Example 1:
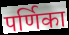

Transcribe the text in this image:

पर्णिका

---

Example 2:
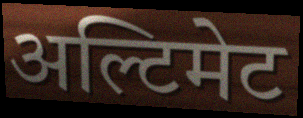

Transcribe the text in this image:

अल्टिमेट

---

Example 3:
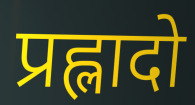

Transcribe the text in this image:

प्रह्लादो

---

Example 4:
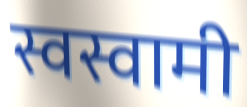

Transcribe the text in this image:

स्वस्वामी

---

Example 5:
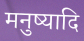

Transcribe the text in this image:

मनुष्यादि